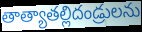
తాత్యాతల్లిదండ్రులను